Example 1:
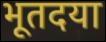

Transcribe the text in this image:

भूतदया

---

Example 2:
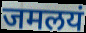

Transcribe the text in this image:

जमलयं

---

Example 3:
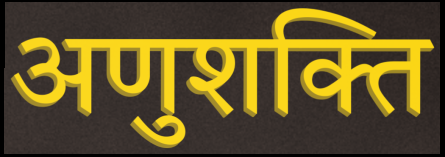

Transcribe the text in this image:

अणुशक्ति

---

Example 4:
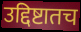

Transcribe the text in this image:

उद्दिष्टातच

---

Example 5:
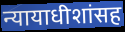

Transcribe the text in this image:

न्यायाधीशांसह